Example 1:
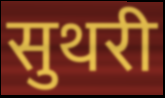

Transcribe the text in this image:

सुथरी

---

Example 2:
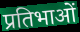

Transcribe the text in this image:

प्रतिभाओं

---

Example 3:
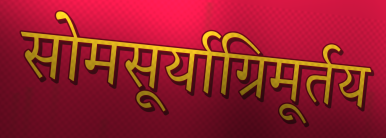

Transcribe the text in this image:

सोमसूर्याग्रिमूर्तय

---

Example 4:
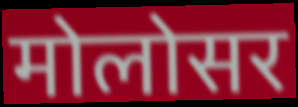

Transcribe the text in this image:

मोलोसर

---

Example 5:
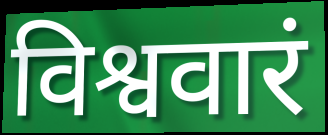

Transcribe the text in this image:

विश्ववारं